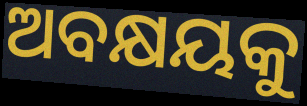
ଅବକ୍ଷୟକୁ